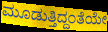
ಮೂಡುತ್ತಿದ್ದಂತೆಯೇ